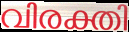
വിരക്തി